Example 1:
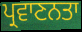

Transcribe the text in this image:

ਪ੍ਰਵਾਣਨਤਾ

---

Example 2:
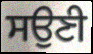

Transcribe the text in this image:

ਸਉਣੀ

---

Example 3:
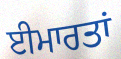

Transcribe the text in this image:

ਈਮਾਰਤਾਂ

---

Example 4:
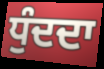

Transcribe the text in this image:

ਧੁੰਦਦਾ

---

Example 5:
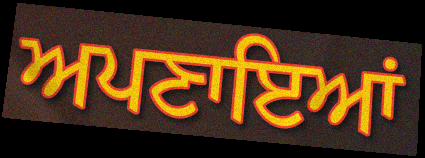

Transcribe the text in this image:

ਅਪਣਾਇਆਂ